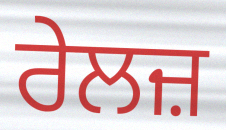
ਰੇਲਜ਼